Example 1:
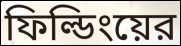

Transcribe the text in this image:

ফিল্ডিংয়ের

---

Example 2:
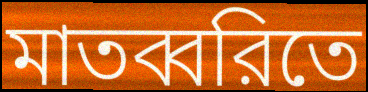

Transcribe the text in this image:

মাতব্বরিতে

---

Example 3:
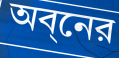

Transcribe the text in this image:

অব্নের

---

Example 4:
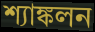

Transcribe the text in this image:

শ্যাঙ্কলন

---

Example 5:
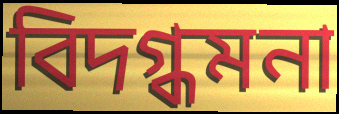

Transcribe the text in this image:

বিদগ্ধমনা